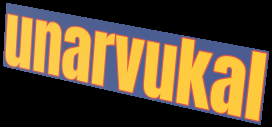
unarvukal